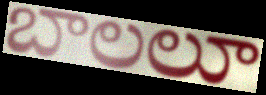
బాలలూ